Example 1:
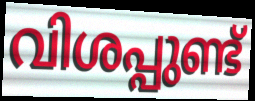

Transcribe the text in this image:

വിശപ്പുണ്ട്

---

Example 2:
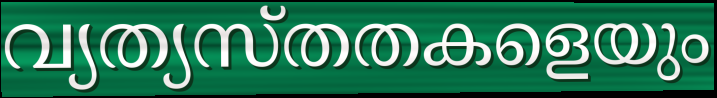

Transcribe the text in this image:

വ്യത്യസ്തതകളെയും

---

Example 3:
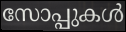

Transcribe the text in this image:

സോപ്പുകൾ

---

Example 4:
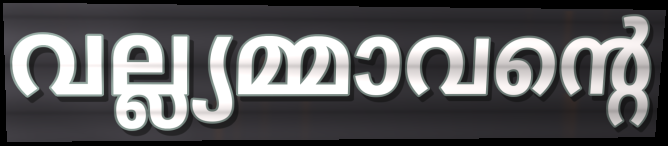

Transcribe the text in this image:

വല്ല്യമ്മാവന്റെ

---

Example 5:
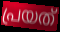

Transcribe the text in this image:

പ്രയത്